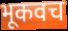
भूकवच